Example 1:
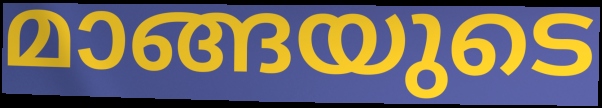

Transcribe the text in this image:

മാങ്ങയുടെ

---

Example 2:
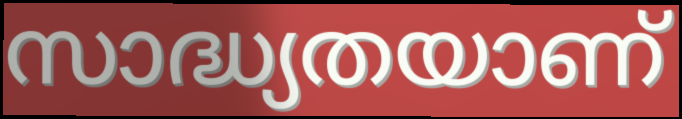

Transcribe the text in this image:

സാദ്ധ്യതയാണ്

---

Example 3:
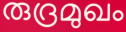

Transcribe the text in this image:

രുദ്രമുഖം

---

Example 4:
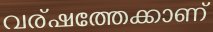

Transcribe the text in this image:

വര്ഷത്തേക്കാണ്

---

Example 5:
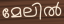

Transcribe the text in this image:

മേലിൽ